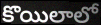
కొయిలాలో